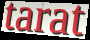
tarat